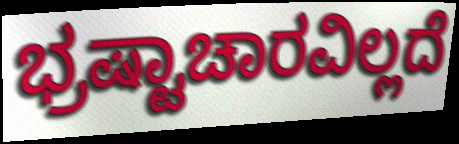
ಭ್ರಷ್ಟಾಚಾರವಿಲ್ಲದೆ